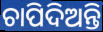
ଚାପିଦିଅନ୍ତି